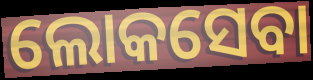
ଲୋକସେବା